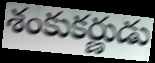
శంకుకర్ణుడు